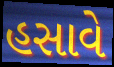
હસાવે